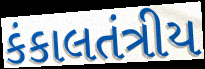
કંકાલતંત્રીય